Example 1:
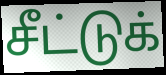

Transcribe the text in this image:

சீட்டுக்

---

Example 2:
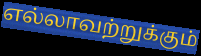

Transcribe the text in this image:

எல்லாவற்றுக்கும்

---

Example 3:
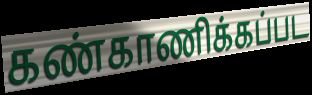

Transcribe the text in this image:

கண்காணிக்கப்பட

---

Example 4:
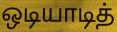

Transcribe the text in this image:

ஒடியாடித்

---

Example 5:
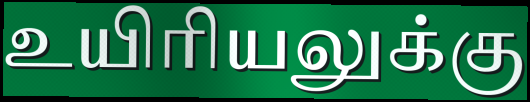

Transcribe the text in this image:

உயிரியலுக்கு